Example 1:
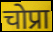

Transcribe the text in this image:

चोप्रा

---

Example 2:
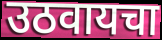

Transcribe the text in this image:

उठवायचा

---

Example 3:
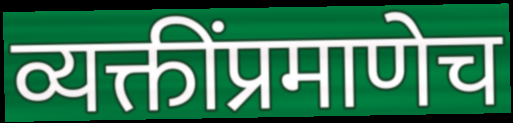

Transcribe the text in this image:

व्यक्तींप्रमाणेच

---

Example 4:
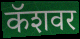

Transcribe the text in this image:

कॅशवर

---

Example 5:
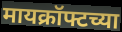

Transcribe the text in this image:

मायक्रॉफ्टच्या